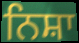
ਨਿਸ਼ਾ